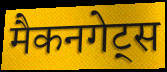
मैकनगेट्स